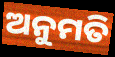
ଅନୁମତି